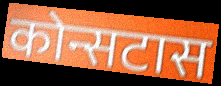
कोन्सटास